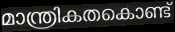
മാന്ത്രികതകൊണ്ട്